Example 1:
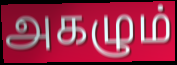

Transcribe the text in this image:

அகழும்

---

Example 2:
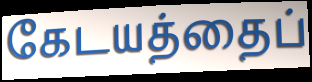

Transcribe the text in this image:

கேடயத்தைப்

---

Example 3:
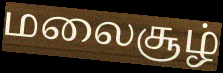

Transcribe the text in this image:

மலைசூழ்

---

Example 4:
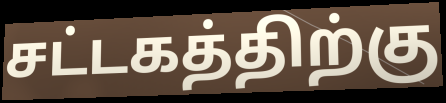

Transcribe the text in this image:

சட்டகத்திற்கு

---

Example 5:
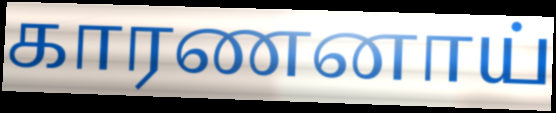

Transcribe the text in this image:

காரணனாய்